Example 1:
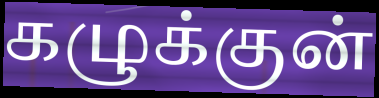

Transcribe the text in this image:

கழுக்குன்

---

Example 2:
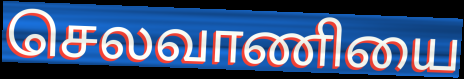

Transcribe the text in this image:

செலவாணியை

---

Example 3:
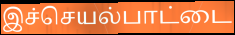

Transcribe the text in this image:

இச்செயல்பாட்டை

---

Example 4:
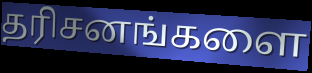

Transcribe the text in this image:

தரிசனங்களை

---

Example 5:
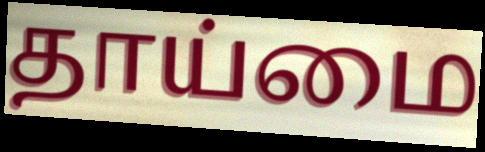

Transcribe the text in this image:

தாய்மை